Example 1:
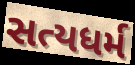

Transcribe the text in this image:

સત્યધર્મ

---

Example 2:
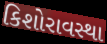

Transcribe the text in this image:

કિશોરાવસ્થા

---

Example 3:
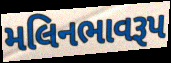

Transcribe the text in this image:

મલિનભાવરૂપ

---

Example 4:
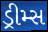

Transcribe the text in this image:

ડ્રીમ્સ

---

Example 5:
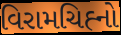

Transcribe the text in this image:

વિરામચિહ્‍નો